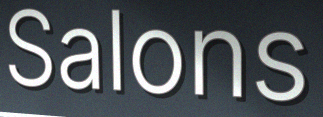
Salons